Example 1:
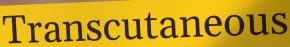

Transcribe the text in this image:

Transcutaneous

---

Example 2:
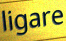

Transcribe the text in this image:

ligare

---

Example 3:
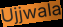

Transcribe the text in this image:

Ujjwala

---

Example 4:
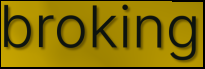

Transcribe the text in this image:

broking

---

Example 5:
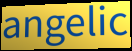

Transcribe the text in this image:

angelic